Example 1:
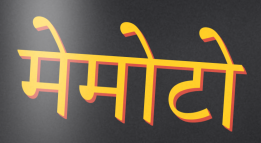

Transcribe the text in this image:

मेमोटो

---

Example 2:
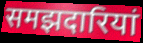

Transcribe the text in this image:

समझदारियां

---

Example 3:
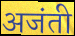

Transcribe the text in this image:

अजंती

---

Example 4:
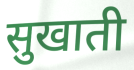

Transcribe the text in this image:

सुखाती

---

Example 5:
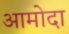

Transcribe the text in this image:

आमोदा